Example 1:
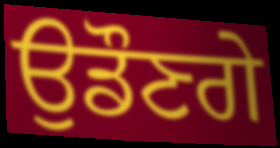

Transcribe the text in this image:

ਉਡੌਣਗੇ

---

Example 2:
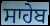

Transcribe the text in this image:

ਸਾਹੇਬ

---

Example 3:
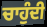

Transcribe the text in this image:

ਚਾਹੁੰਦੀ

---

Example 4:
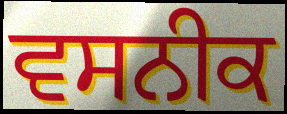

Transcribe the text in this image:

ਵਸਨੀਕ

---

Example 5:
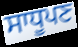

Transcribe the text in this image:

ਸਾਧੂਪਣ